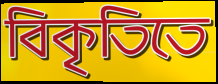
বিকৃতিতে